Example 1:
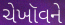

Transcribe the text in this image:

ચેખૉવને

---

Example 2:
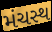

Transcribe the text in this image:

મંચસ્થ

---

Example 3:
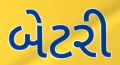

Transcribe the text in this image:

બેટરી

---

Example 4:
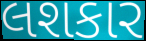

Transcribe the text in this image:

લશકાર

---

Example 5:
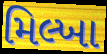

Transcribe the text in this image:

મિલ્ખા